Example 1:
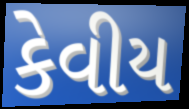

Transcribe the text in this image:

કેવીય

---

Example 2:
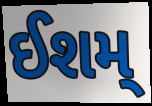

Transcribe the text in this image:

ઈશમ્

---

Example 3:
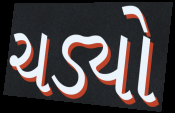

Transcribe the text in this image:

ચડ્યો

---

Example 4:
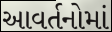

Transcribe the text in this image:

આવર્તનોમાં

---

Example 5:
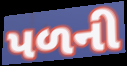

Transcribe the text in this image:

પળની